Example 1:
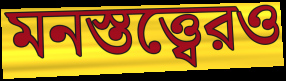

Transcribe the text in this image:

মনস্তত্ত্বেরও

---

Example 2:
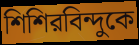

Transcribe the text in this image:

শিশিরবিন্দুকে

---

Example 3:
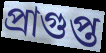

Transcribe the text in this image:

প্রাগুপ্ত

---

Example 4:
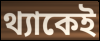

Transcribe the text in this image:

থ্যাকেই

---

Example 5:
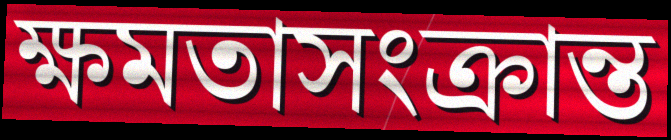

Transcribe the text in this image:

ক্ষমতাসংক্রান্ত